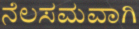
ನೆಲಸಮವಾಗಿ